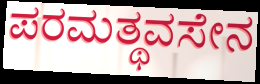
ಪರಮತ್ಥವಸೇನ